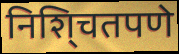
निश्‍चितपणे